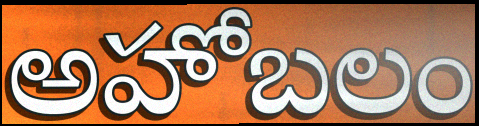
అహోబలం